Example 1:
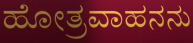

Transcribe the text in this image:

ಹೋತ್ರವಾಹನನು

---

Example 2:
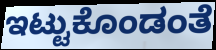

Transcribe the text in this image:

ಇಟ್ಟುಕೊಂಡಂತೆ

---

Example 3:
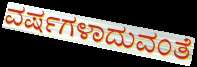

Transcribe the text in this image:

ವರ್ಷಗಳಾದುವಂತೆ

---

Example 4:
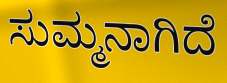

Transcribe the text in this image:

ಸುಮ್ಮನಾಗಿದೆ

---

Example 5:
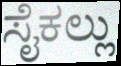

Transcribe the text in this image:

ಸೈಕಲ್ಲು